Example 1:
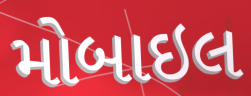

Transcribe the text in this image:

મોબાઇલ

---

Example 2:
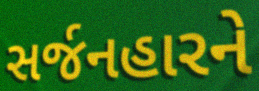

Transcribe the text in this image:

સર્જનહારને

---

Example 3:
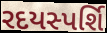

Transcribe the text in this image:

રદયસ્પર્શિ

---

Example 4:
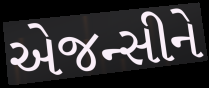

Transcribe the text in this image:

એજન્સીને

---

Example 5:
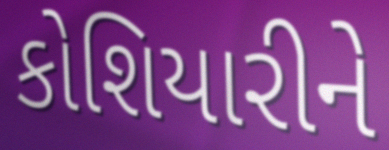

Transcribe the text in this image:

કોશિયારીને